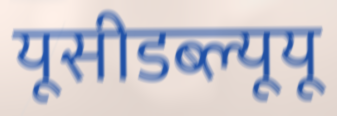
यूसीडब्ल्यूयू